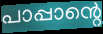
പാപ്പാന്റെ